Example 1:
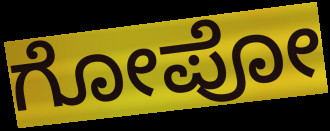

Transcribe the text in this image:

ಗೋಪೋ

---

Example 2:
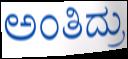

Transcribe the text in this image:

ಅಂತಿದ್ರು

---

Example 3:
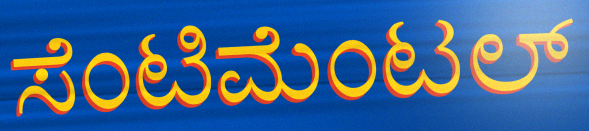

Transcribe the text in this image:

ಸೆಂಟಿಮೆಂಟಲ್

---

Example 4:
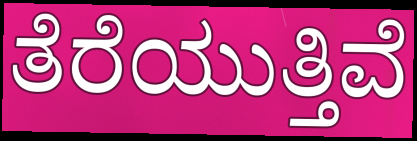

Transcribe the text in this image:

ತೆರೆಯುತ್ತಿವೆ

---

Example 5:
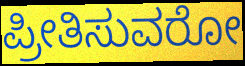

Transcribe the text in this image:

ಪ್ರೀತಿಸುವರೋ